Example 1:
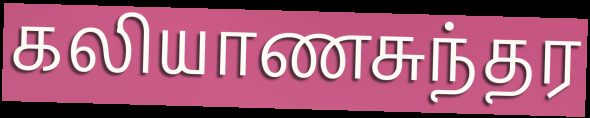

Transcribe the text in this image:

கலியாணசுந்தர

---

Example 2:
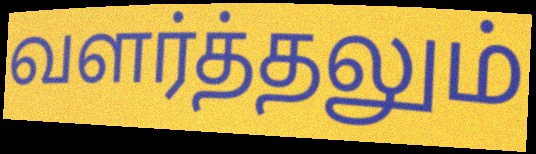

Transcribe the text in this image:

வளர்த்தலும்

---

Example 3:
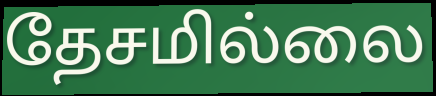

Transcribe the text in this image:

தேசமில்லை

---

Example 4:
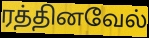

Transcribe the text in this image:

ரத்தினவேல்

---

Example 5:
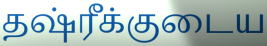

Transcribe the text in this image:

தஷ்ரீக்குடைய